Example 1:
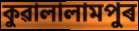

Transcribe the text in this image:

কুৱালালামপুৰ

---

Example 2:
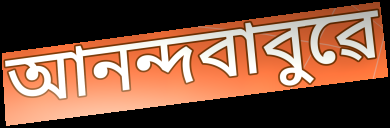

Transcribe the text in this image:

আনন্দবাবুৱে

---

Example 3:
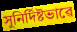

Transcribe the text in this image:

সুনিৰ্দিষ্টভাৱে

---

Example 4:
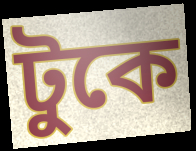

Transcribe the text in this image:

টুকে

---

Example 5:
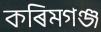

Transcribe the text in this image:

কৰিমগঞ্জ